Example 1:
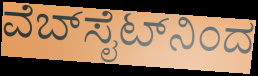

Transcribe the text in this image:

ವೆಬ್‍ಸೈಟ್‍ನಿಂದ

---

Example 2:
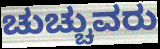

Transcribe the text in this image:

ಚುಚ್ಚುವರು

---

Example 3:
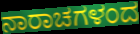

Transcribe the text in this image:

ನಾರಾಚಗಳಂದ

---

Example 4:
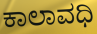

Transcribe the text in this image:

ಕಾಲಾವಧಿ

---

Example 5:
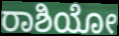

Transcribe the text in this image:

ರಾಶಿಯೋ